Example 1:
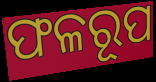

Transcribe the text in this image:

ଫଳରୂପ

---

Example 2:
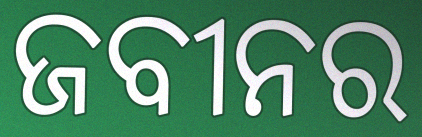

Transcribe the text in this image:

ଜବୀନର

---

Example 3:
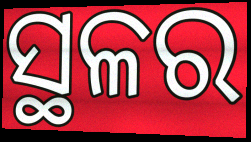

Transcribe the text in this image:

ସ୍ଥଳର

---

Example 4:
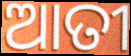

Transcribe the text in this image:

ଆତୀ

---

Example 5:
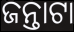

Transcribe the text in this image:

ଜନ୍ତାଟା